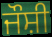
ਜੌਸ਼ੀ